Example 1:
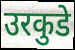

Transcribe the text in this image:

उरकुडे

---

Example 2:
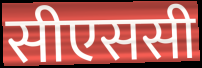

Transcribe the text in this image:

सीएससी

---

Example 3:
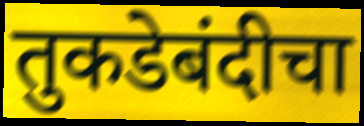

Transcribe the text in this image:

तुकडेबंदीचा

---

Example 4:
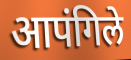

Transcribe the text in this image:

आपंगिले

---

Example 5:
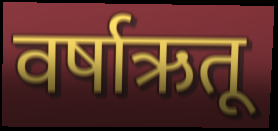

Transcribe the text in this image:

वर्षाऋतू